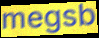
megsb